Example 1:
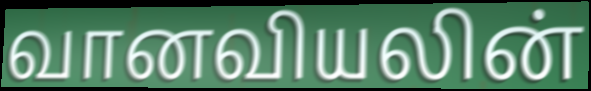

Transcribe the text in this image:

வானவியலின்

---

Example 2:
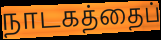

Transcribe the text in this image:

நாடகத்தைப்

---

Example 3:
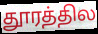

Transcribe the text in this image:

தூரத்தில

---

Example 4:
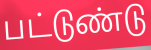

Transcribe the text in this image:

பட்டுண்டு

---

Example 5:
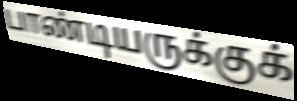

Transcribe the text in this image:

பாண்டியருக்குக்